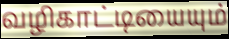
வழிகாட்டியையும்